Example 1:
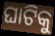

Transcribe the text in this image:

ଘାଟିକୁ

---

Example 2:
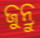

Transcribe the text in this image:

ଜୁନ୍ରୁ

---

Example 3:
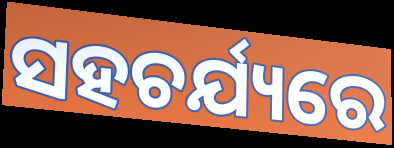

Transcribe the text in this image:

ସହଚର୍ଯ୍ୟରେ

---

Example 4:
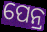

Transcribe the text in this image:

ପେନ୍ର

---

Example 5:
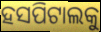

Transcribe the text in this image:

ହସପିଟାଲକୁ